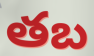
తబ